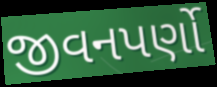
જીવનપર્ણો